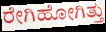
ರೇಗಿಹೋಗಿತ್ತು